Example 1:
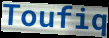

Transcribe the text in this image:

Toufiq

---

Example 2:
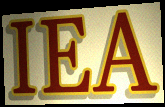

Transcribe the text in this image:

IEA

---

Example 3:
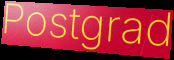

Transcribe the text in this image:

Postgrad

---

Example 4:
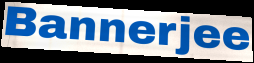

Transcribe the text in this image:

Bannerjee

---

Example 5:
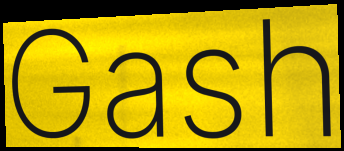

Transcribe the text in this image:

Gash